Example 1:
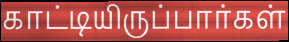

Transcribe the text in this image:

காட்டியிருப்பார்கள்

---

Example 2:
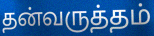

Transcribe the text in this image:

தன்வருத்தம்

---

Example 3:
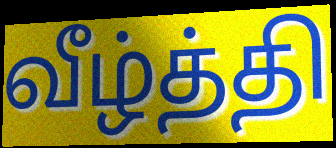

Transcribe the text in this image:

வீழ்த்தி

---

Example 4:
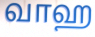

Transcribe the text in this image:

வாஹ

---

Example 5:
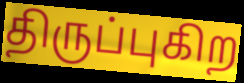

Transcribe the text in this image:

திருப்புகிற